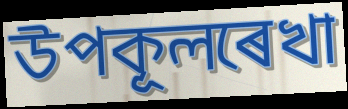
উপকূলৰেখা